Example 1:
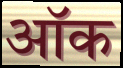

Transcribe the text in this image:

ऑक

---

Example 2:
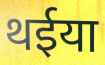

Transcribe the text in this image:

थईया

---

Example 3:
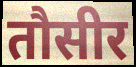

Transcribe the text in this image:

तौसीर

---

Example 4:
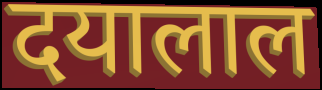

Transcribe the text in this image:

दयालाल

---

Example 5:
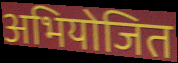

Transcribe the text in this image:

अभियोजित